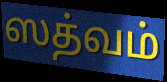
ஸத்வம்